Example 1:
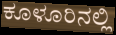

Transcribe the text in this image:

ಕೂಳೂರಿನಲ್ಲಿ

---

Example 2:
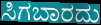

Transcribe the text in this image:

ಸಿಗಬಾರದು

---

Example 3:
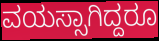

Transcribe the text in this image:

ವಯಸ್ಸಾಗಿದ್ದರೂ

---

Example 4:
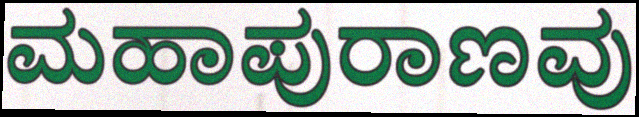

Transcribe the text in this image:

ಮಹಾಪುರಾಣವು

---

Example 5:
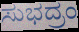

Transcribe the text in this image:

ಸುಭದ್ರಂ